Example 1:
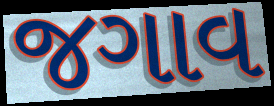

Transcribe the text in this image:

જગાવ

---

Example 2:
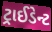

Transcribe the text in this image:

ટ્રાઈડેન્ટ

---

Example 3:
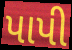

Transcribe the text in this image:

પાપી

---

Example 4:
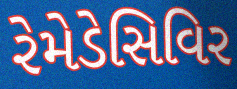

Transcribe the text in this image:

રેમેડેસિવિર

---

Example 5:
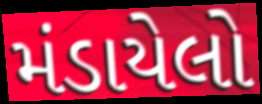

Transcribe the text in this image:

મંડાયેલો